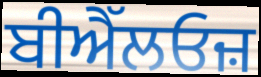
ਬੀਐੱਲਓਜ਼